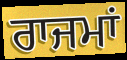
ਰਾਜਮਾਂ